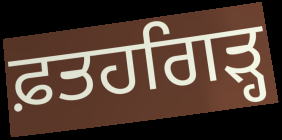
ਫ਼ਤਹਗਿੜ੍ਹ